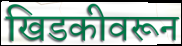
खिडकीवरून